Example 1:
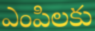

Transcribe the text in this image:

ఎంపిలకు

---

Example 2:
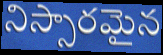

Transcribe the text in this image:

నిస్సారమైన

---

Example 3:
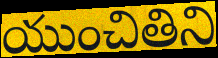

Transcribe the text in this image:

యుంచితిని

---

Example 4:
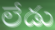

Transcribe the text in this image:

లేడు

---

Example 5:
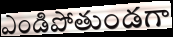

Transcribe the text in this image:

ఎండిపోతుండగా